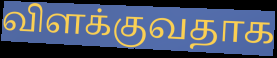
விளக்குவதாக